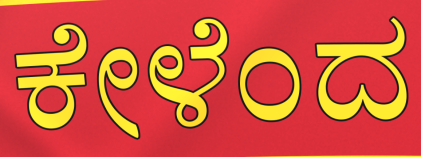
ಕೇಳೆಂದ